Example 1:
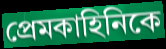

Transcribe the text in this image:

প্রেমকাহিনিকে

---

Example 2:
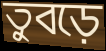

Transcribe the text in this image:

তুবড়ে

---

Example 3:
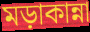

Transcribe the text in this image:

মড়াকান্না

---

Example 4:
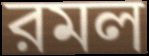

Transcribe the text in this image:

রমল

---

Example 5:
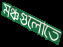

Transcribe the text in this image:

মঞ্চগুলোতে